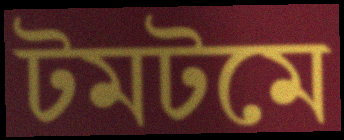
টমটমে